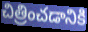
చిత్రించడానికి